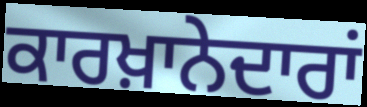
ਕਾਰਖ਼ਾਨੇਦਾਰਾਂ